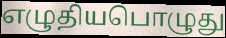
எழுதியபொழுது